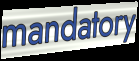
mandatory